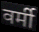
वर्मी